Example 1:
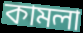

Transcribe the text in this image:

কামলা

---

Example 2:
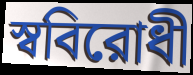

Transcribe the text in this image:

স্ববিরোধী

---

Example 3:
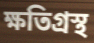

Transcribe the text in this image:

ক্ষতিগ্রস্থ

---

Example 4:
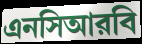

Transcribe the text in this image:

এনসিআরবি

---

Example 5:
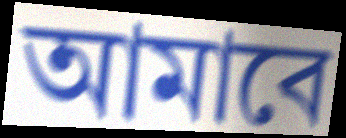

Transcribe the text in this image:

আমাবে